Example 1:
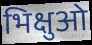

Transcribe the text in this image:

भिक्षुओ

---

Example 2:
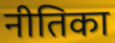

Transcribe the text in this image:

नीतिका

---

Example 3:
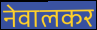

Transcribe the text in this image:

नेवालकर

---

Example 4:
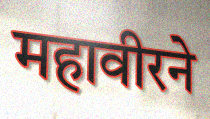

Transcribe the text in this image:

महावीरने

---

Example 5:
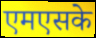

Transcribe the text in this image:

एमएसके